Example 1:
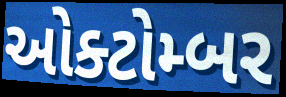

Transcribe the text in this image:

ઓક્ટોમ્બર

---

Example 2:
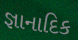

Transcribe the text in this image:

જ્ઞાનાદિક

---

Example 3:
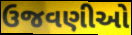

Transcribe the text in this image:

ઉજવણીઓ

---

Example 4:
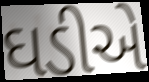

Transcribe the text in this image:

ઘડીએ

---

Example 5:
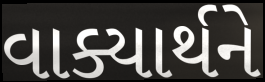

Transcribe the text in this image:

વાક્યાર્થને